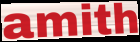
amith